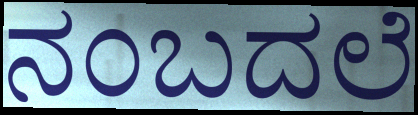
ನಂಬದಲೆ